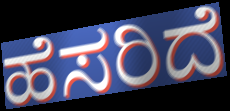
ಹೆಸರಿದೆ